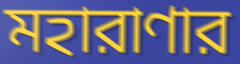
মহারাণার